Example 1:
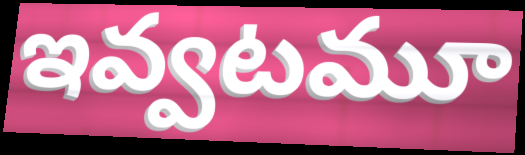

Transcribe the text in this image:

ఇవ్వటమూ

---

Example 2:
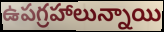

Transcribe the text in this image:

ఉపగ్రహాలున్నాయి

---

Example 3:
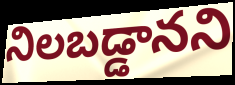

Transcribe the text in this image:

నిలబడ్డానని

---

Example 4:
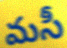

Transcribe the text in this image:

మసీ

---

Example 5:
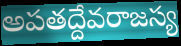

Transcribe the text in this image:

అపతద్దేవరాజస్య